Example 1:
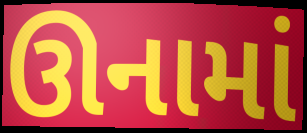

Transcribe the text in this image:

ઊનામાં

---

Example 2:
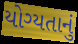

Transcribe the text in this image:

યોગ્યતાનું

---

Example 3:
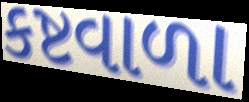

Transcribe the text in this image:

કષ્ટવાળા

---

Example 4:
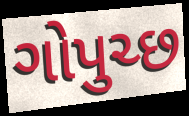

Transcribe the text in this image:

ગોપુચ્છ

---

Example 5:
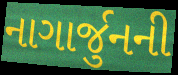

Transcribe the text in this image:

નાગાર્જુનની